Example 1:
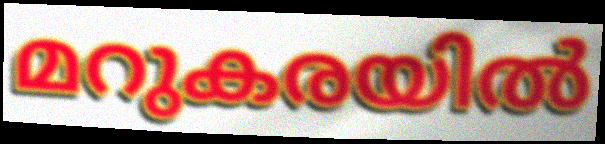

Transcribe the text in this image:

മറുകരയിൽ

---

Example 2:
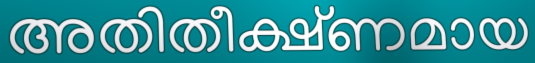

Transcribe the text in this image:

അതിതീക്ഷ്ണമായ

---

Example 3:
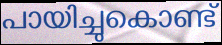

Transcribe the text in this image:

പായിച്ചുകൊണ്ട്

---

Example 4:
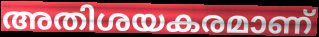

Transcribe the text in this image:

അതിശയകരമാണ്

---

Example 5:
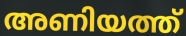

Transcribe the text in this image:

അണിയത്ത്